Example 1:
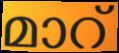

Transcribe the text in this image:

മാറ്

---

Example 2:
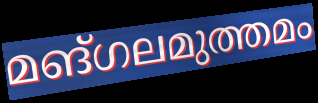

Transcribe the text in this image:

മങ്ഗലമുത്തമം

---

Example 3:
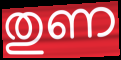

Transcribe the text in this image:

തുണ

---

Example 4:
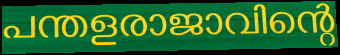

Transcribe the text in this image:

പന്തളരാജാവിന്റെ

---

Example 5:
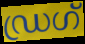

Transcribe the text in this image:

ഡ്രഗ്